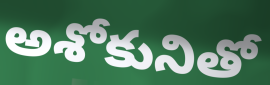
అశోకునితో